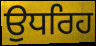
ਉਧਰਿਹ